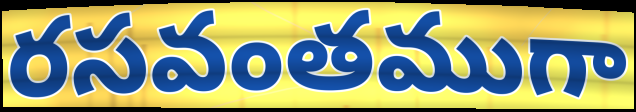
రసవంతముగా